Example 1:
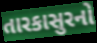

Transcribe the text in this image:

તારકાસુરનો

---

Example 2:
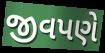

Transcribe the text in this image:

જીવપણે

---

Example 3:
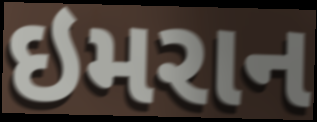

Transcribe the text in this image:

ઇમરાન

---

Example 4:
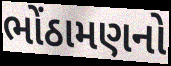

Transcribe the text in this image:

ભોંઠામણનો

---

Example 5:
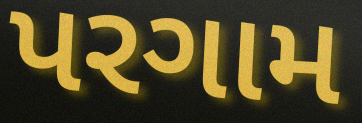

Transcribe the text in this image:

પરગામ